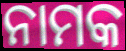
ନାମକ